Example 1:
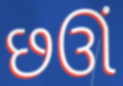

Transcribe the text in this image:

છઊં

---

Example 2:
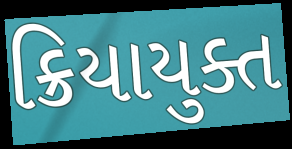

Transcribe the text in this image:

ક્રિયાયુક્ત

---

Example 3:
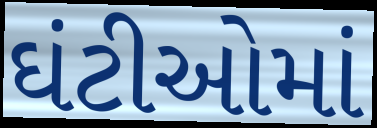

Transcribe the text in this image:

ઘંટીઓમાં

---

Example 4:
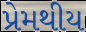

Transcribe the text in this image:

પ્રેમથીય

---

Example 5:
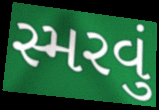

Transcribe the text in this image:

સ્મરવું